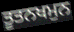
ਤੂਤਨਖਮੁਨ